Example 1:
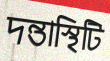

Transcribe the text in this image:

দন্তাস্থিটি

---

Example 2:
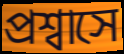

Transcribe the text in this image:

প্রশ্বাসে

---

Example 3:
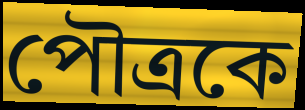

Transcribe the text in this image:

পৌত্রকে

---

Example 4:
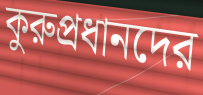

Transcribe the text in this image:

কুরুপ্রধানদের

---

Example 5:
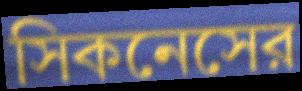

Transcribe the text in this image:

সিকনেসের